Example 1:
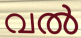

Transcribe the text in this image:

വൽ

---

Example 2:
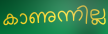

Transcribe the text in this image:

കാണുന്നില്ല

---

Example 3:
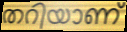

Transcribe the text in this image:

തറിയാണ്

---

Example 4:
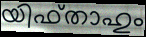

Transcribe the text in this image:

യിഫ്താഹും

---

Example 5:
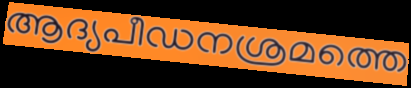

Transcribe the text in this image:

ആദ്യപീഡനശ്രമത്തെ